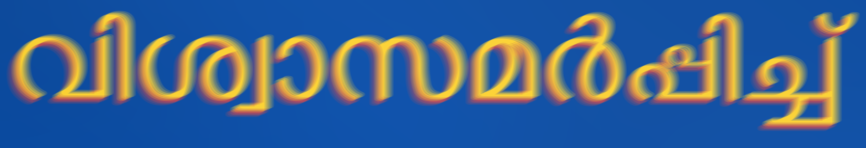
വിശ്വാസമർപ്പിച്ച്